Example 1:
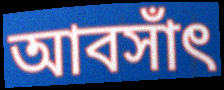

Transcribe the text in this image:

আবসাঁৎ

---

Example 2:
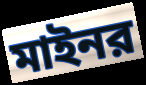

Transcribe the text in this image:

মাইনর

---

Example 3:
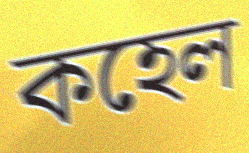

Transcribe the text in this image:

কহেল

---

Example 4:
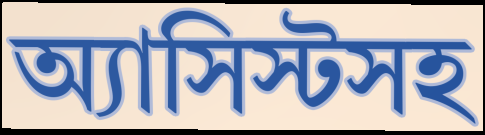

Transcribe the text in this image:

অ্যাসিস্টসহ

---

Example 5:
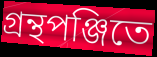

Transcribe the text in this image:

গ্রন্থপঞ্জিতে